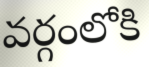
వర్గంలోకి